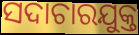
ସଦାଚାରଯୁକ୍ତ